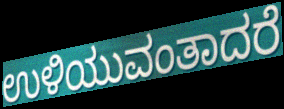
ಉಳಿಯುವಂತಾದರೆ